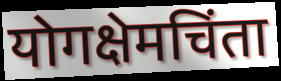
योगक्षेमचिंता